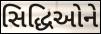
સિદ્ધિઓને